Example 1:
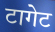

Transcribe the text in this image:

टागेट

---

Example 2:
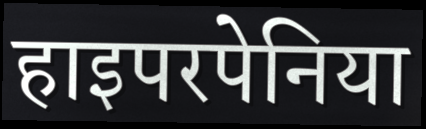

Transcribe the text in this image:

हाइपरपेनिया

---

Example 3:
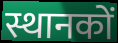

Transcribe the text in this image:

स्थानकों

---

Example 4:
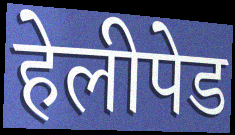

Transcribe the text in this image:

हेलीपेड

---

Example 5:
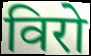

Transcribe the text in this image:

विरो